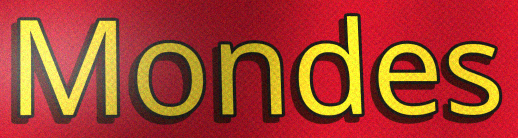
Mondes